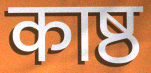
काष्ठ